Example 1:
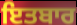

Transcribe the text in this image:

ਇਤਬਾਰ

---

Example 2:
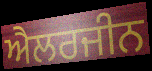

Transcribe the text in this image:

ਐਲਰਜੀਨ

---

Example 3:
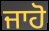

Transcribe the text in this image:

ਜਾਹੋ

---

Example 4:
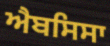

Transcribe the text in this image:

ਐਬਸਿਸਾ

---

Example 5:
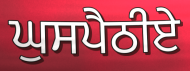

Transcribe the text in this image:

ਘੁਸਪੈਠੀਏ